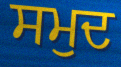
ਸਮੁਦ